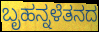
ಬೃಹನ್ನಳೆತನದ